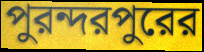
পুরন্দরপুরের